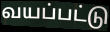
வயப்பட்டு